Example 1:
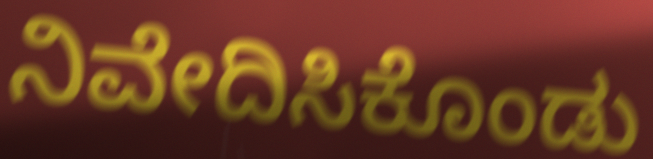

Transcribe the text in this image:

ನಿವೇದಿಸಿಕೊಂಡು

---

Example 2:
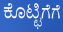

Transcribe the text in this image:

ಕೊಟ್ಟಿಗೆಗೆ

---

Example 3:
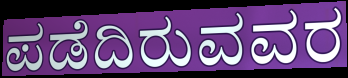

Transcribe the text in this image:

ಪಡೆದಿರುವವರ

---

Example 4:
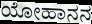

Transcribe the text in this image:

ಯೋಹಾನನ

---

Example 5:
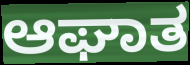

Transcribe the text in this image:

ಆಘಾತ